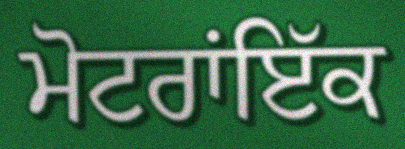
ਮੋਟਰਾਂਇੱਕ